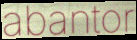
abantor